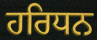
ਹਰਿਧਨ